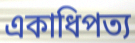
একাধিপত্য